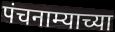
पंचनाम्याच्या